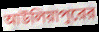
আউলিয়াপুরের